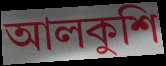
আলকুশি